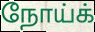
நோய்க்